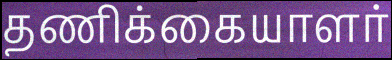
தணிக்கையாளர்